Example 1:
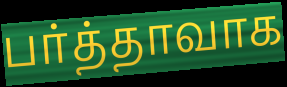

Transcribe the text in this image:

பர்த்தாவாக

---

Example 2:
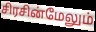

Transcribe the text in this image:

சிரசின்மேலும்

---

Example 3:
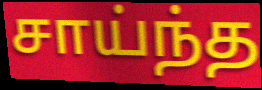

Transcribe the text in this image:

சாய்ந்த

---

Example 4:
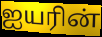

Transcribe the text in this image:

ஐயரின்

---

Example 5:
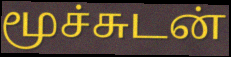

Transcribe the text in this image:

மூச்சுடன்